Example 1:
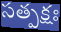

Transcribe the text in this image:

సత్పక్షః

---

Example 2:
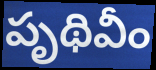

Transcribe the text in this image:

పృథివీం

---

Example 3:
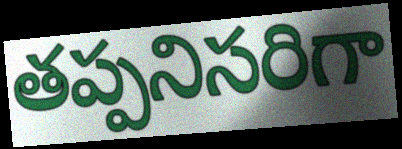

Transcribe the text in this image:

తప్పనిసరిగా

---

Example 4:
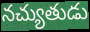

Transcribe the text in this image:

నచ్యుతుడు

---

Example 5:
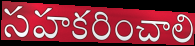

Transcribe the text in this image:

సహకరించాలి